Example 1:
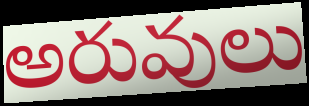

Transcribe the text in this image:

అరువులు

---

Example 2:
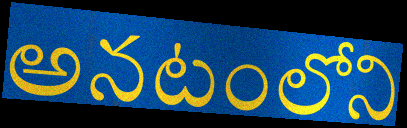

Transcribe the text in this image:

అనటంలోని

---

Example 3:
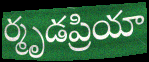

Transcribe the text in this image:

ర్మృడప్రియా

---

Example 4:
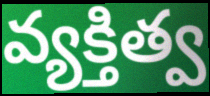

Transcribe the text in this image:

వ్యక్తిత్వ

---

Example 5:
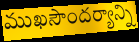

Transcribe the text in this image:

ముఖసౌందర్యాన్ని